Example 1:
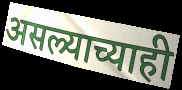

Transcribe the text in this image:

असल्याच्याही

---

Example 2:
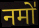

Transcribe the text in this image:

नमो॑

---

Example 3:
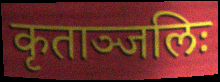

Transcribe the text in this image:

कृताञ्जलिः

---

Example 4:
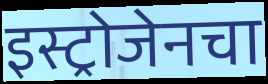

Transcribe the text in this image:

इस्ट्रोजेनचा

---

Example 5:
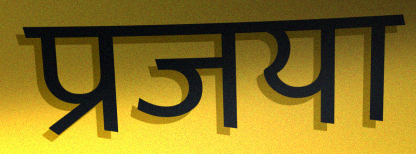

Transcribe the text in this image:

प्रजया